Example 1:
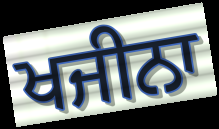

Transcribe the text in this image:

ਖਜੀਨਾ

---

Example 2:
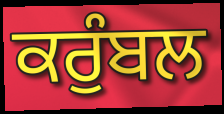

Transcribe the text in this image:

ਕਰੁੰਬਲ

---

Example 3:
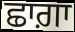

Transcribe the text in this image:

ਛਾਗ਼ਾ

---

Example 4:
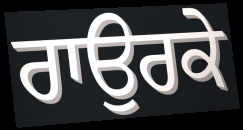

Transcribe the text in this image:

ਰਾਉਰਕੇ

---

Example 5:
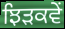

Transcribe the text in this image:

ਝਿੜਕਵੇਂ